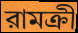
রামক্রী